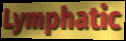
Lymphatic